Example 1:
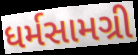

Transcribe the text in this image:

ધર્મસામગ્રી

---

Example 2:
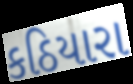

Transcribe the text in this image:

કઠિયારા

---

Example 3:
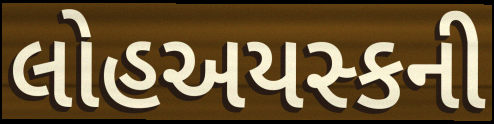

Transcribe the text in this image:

લોહઅયસ્કની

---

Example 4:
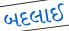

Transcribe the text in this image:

બદલાઈ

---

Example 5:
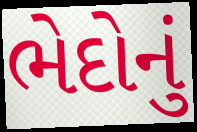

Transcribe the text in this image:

ભેદોનું